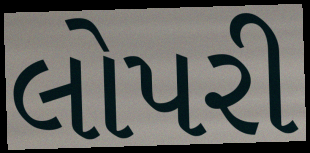
લોપરી